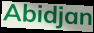
Abidjan